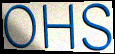
OHS